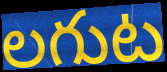
లగుట